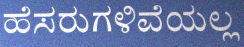
ಹೆಸರುಗಳಿವೆಯಲ್ಲ